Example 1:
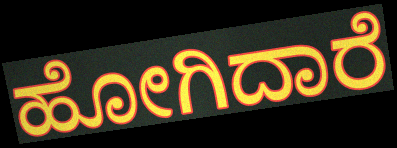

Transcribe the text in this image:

ಹೋಗಿದಾರೆ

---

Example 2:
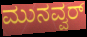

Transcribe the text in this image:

ಮುನವ್ವರ್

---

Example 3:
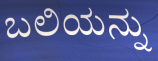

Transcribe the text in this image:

ಬಲಿಯನ್ನು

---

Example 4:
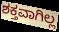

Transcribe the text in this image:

ಶಕ್ತವಾಗಿಲ್ಲ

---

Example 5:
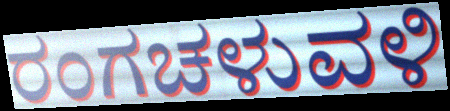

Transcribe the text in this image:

ರಂಗಚಳುವಳಿ